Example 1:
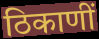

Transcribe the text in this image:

ठिकाणीं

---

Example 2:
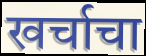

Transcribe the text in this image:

खर्चाचा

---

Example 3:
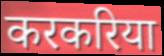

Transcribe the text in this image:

करकरिया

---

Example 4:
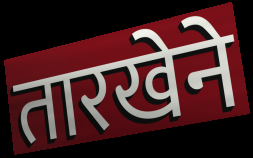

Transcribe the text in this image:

तारखेने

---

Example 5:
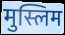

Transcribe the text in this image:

मुस्लिम